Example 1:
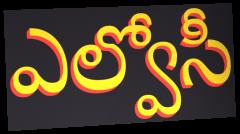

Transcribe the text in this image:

ఎల్వోసీ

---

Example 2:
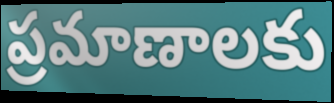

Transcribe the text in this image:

ప్రమాణాలకు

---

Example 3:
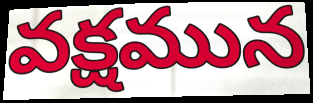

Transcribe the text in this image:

వక్షమున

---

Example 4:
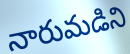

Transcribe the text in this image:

నారుమడిని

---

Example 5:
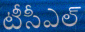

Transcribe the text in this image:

టీసీఎల్